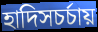
হাদিসচর্চায়